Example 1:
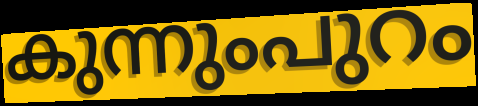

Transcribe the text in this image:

കുന്നുംപുറം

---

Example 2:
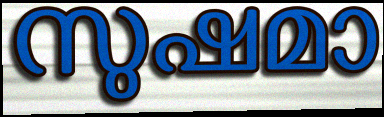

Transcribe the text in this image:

സുഷമാ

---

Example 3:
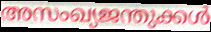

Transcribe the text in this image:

അസംഖ്യജന്തുക്കൾ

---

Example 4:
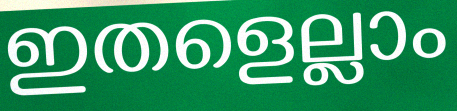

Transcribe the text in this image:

ഇതളെല്ലാം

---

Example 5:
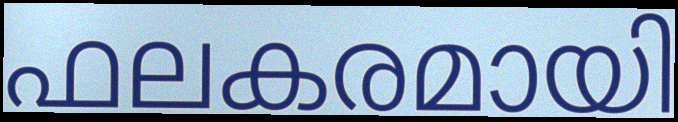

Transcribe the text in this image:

ഫലകരമായി